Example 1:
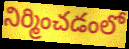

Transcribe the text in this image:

నిర్మించడంలో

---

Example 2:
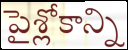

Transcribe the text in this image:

పైశ్లోకాన్ని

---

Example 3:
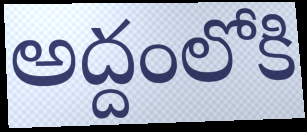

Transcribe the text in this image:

అద్దంలోకి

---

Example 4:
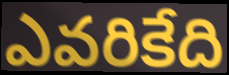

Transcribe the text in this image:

ఎవరికేది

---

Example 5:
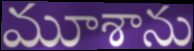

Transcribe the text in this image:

మూశాను